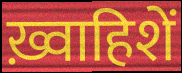
ख़्वाहिशें